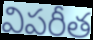
విపరీత